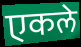
एकले